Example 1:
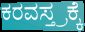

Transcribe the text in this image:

ಕರವಸ್ತ್ರಕ್ಕೆ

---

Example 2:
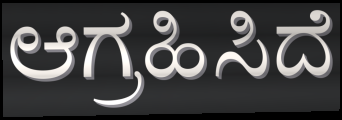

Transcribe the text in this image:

ಆಗ್ರಹಿಸಿದೆ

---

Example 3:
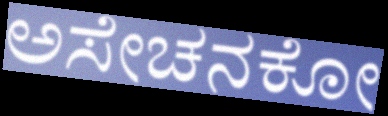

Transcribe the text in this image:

ಅಸೇಚನಕೋ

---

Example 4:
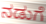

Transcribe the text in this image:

ನಡುಗೆ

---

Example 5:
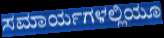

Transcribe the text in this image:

ಸಮಾರ್ಯಗಳಲ್ಲಿಯೂ